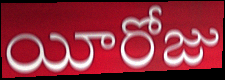
యీరోజు